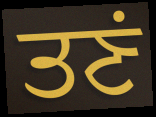
ਤਣਂ